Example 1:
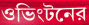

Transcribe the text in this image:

ওভিংটনের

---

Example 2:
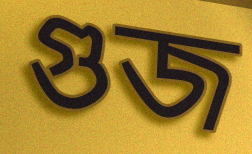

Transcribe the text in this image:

গুজ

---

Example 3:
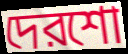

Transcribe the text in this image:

দেরশো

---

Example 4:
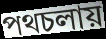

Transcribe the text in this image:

পথচলায়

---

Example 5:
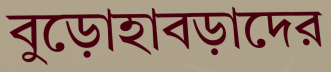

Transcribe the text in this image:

বুড়োহাবড়াদের